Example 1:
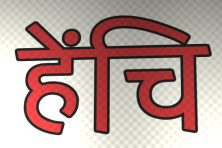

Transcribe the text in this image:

हेंचि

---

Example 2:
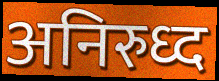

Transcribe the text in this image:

अनिरुध्द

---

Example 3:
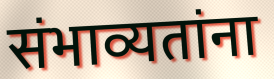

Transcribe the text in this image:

संभाव्यतांना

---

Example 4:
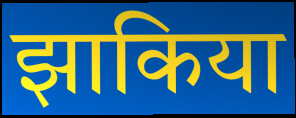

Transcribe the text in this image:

झाकिया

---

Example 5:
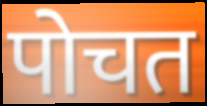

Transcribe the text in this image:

पोचत